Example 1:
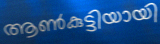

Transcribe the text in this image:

ആൺകുട്ടിയായി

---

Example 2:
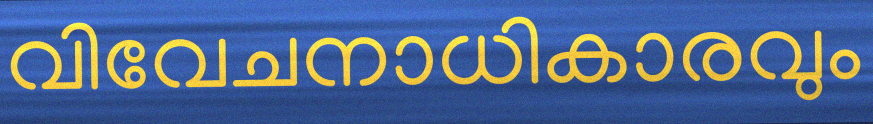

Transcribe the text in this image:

വിവേചനാധികാരവും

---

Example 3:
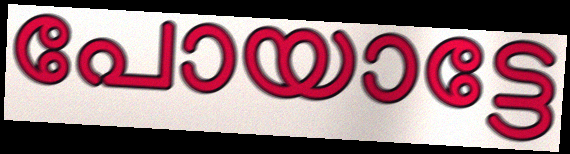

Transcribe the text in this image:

പോയാട്ടേ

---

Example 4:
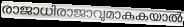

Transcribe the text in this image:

രാജാധിരാജാവുമാകുകയാൽ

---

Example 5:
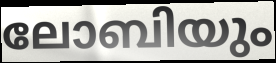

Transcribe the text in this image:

ലോബിയും